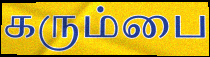
கரும்பை